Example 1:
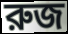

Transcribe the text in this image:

রুজ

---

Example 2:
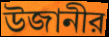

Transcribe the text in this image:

উজানীর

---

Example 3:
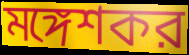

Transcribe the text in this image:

মঙ্গেশকর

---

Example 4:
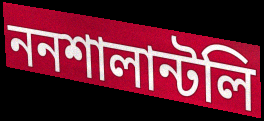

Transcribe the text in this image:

ননশালান্টলি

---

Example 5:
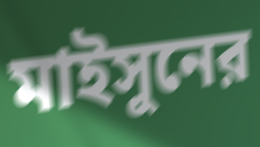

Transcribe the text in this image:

মাইসুনের